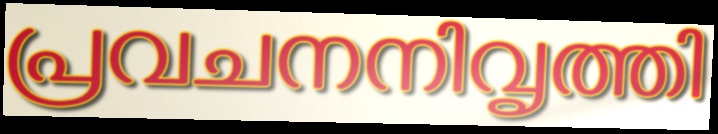
പ്രവചനനിവൃത്തി